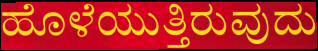
ಹೊಳೆಯುತ್ತಿರುವುದು